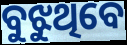
ବୁଝୁଥିବେ